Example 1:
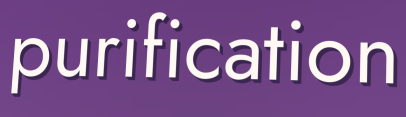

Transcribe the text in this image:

purification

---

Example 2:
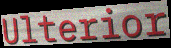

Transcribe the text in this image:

Ulterior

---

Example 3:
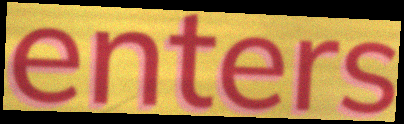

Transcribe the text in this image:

enters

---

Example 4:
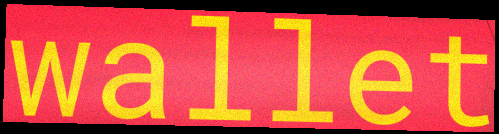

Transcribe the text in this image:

wallet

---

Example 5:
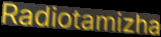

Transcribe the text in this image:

Radiotamizha